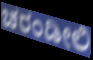
ಚರಂಡೀಲಿ